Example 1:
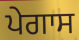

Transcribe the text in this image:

ਪੇਗਾਸ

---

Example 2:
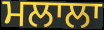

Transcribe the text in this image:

ਮਲਾਲਾ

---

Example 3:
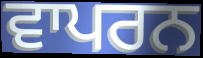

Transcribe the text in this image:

ਵਾਪਰਨ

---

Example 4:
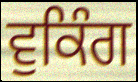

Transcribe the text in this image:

ਵੁਕਿੰਗ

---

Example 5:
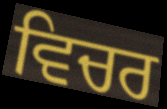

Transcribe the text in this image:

ਵਿਚਰ